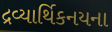
દ્રવ્યાર્થિકનયના